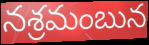
నశ్రమంబున